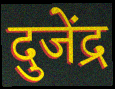
दुजेंद्र